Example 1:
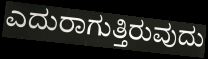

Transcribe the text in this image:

ಎದುರಾಗುತ್ತಿರುವುದು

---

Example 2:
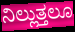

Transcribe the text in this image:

ನಿಲ್ಲುತ್ತಲೂ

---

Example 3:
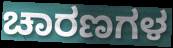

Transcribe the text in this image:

ಚಾರಣಗಳ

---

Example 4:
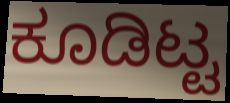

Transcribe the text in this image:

ಕೂಡಿಟ್ಟ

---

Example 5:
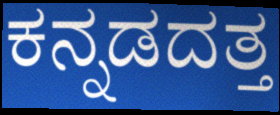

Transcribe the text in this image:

ಕನ್ನಡದತ್ತ